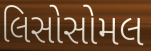
લિસોસોમલ